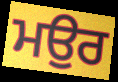
ਮਉਰ